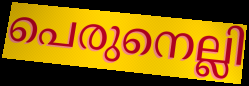
പെരുനെല്ലി